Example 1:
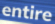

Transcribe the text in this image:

entire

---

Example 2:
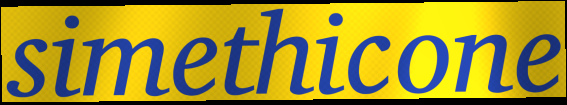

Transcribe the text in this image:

simethicone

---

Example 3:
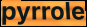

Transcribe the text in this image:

pyrrole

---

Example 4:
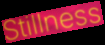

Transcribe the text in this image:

Stillness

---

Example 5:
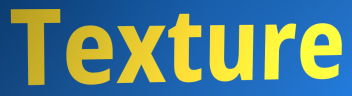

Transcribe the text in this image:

Texture